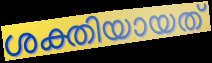
ശക്തിയായത്